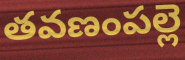
తవణంపల్లె